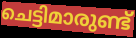
ചെട്ടിമാരുണ്ട്